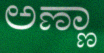
ಅಣ್ಣಾ